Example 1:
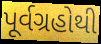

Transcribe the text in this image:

પૂર્વગ્રહોથી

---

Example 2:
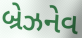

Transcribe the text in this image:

બ્રેઝનેવ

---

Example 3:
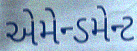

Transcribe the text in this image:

એમેન્ડમેન્ટ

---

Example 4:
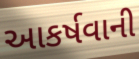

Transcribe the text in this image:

આકર્ષવાની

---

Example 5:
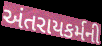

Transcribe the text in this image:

અંતરાયકર્મની